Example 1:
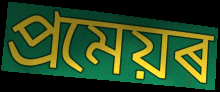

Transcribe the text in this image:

প্ৰমেয়ৰ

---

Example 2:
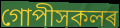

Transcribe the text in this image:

গোপীসকলৰ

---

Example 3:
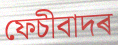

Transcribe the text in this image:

ফেচীবাদৰ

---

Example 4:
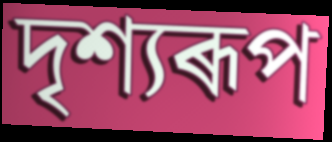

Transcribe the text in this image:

দৃশ্যৰূপ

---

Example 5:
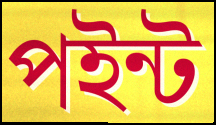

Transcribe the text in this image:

পইন্ট